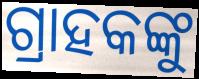
ଗ୍ରାହକଙ୍କୁ